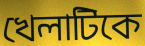
খেলাটিকে